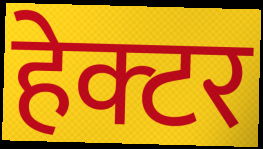
हेक्‍टर